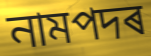
নামপদৰ